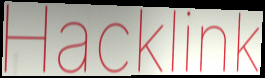
Hacklink